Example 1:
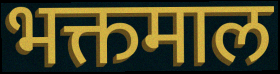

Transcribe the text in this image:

भक्तमाल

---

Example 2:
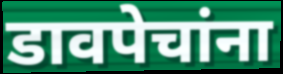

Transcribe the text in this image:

डावपेचांना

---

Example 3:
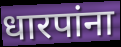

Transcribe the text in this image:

धारपांना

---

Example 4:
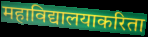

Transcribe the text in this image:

महाविद्यालयाकरिता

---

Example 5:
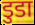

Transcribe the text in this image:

डुडा